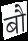
बौ